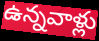
ఉన్నవాళ్లు